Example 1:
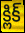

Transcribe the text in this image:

క్లిక్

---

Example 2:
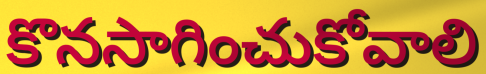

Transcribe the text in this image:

కొనసాగించుకోవాలి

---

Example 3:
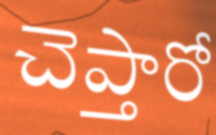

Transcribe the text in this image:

చెప్తారో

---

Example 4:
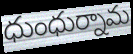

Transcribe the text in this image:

ధుంధుర్నామ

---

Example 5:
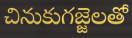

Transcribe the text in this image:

చినుకుగజ్జెలతో